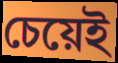
চেয়েই